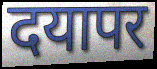
दयापर